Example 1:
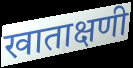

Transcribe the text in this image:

खाताक्षणी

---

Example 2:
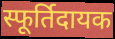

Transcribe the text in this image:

स्फूर्तिदायक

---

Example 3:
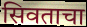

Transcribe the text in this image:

सिवताचा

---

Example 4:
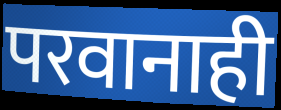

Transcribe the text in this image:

परवानाही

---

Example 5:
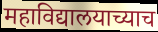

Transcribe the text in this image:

महाविद्यालयाच्याच